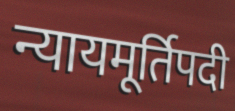
न्यायमूर्तिपदी